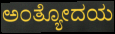
ಅಂತ್ಯೋದಯ